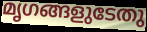
മൃഗങ്ങളുടേതു